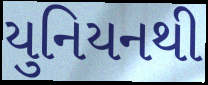
યુનિયનથી